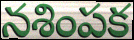
నశింపక